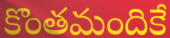
కొంతమందికే